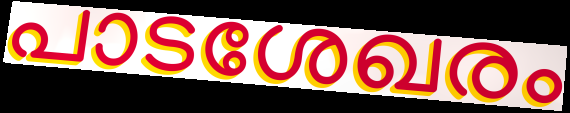
പാടശേഖരം